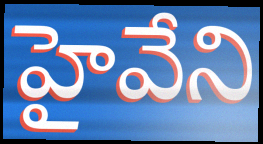
హైవేని